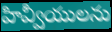
హివ్వీయులను